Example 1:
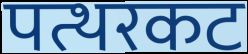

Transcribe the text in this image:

पत्थरकट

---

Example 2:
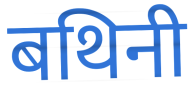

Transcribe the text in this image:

बथिनी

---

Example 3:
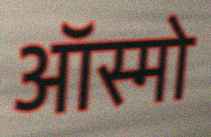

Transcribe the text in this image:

ऑस्मो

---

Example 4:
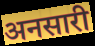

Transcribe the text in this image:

अनसारी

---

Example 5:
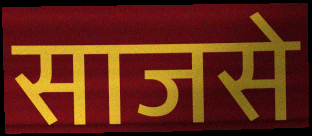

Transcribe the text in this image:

साजसे